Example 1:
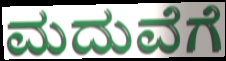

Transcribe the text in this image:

ಮದುವೆಗೆ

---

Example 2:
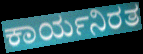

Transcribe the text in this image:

ಕಾರ್ಯನಿರತ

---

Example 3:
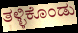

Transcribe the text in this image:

ತಳ್ಳಿಕೊಂಡು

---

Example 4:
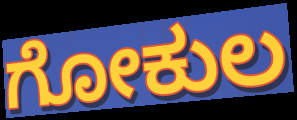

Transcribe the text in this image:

ಗೋಕುಲ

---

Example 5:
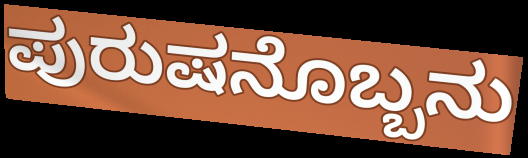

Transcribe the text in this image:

ಪುರುಷನೊಬ್ಬನು